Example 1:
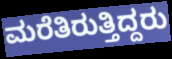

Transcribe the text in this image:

ಮರೆತಿರುತ್ತಿದ್ದರು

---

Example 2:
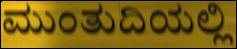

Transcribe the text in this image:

ಮುಂತುದಿಯಲ್ಲಿ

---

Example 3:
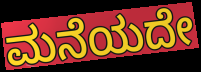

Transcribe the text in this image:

ಮನೆಯದೇ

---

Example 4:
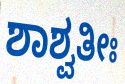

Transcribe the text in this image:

ಶಾಶ್ವತೀಃ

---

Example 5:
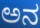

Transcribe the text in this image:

ಅನ